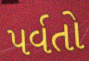
પર્વતો